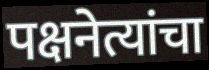
पक्षनेत्यांचा